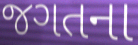
જગતના